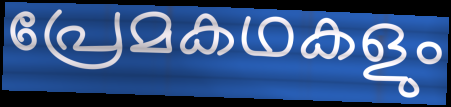
പ്രേമകഥകളും